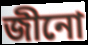
জীনো